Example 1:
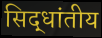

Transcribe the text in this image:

सिद्धांतीय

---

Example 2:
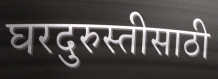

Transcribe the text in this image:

घरदुरुस्तीसाठी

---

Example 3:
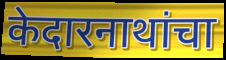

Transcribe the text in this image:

केदारनाथांचा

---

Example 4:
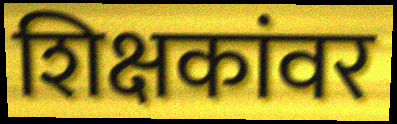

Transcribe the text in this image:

शिक्षकांवर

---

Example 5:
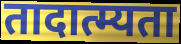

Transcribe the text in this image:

तादात्म्यता